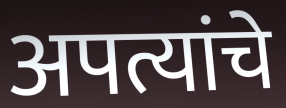
अपत्यांचे